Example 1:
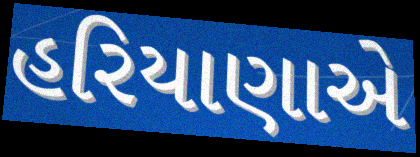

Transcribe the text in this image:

હરિયાણાએ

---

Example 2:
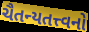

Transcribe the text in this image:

ચૈતન્યતત્ત્વનો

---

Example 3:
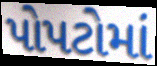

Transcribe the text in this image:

પોપટોમાં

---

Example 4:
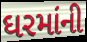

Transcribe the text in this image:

ઘરમાંની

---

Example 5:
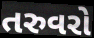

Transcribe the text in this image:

તરુવરો